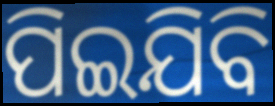
ପିଇଯିବି